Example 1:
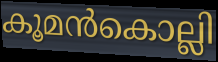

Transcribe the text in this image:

കൂമൻകൊല്ലി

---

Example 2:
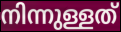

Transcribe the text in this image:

നിന്നുള്ളത്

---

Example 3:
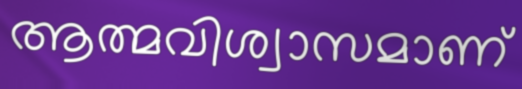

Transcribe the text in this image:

ആത്മവിശ്വാസമാണ്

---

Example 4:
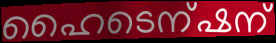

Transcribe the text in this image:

ഹൈടെന്ഷന്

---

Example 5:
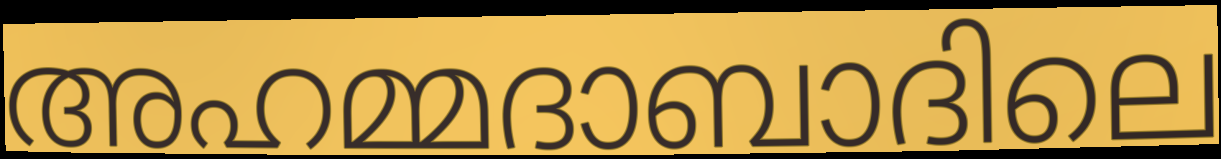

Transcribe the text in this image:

അഹമ്മദാബാദിലെ